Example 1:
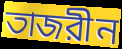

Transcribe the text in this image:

তাজরীন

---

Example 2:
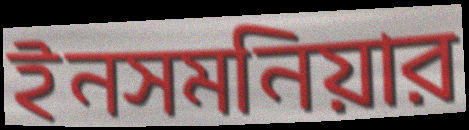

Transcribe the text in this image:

ইনসমনিয়ার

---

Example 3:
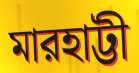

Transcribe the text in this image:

মারহাট্টী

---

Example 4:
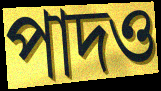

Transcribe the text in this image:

পাদও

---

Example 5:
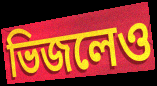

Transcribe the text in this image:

ভিজলেও